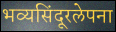
भव्यसिंदूरलेपना